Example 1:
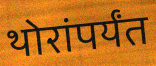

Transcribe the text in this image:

थोरांपर्यंत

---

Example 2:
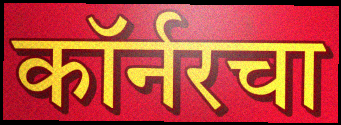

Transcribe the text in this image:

कॉर्नरचा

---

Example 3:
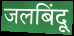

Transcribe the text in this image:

जलबिंदू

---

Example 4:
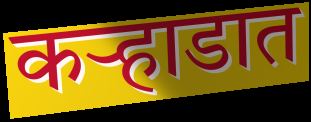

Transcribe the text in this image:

कऱ्हाडात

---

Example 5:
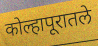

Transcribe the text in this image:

कोल्हापूरातले